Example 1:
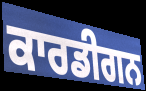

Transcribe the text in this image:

ਕਾਰਡੀਗਨ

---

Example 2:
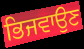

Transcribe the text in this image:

ਭਿਜਵਾਉਣ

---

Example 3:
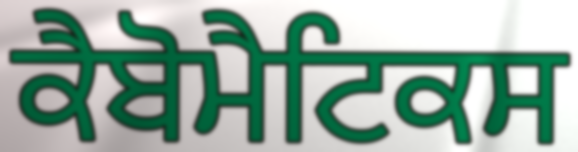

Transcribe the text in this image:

ਕੈਬੋਮੈਟਿਕਸ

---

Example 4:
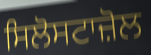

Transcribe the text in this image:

ਸਿਲੋਸਟਾਜ਼ੋਲ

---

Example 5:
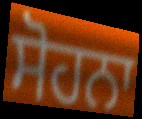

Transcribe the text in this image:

ਸੋਹਨਾ